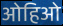
ओहिओ